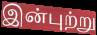
இன்புற்று